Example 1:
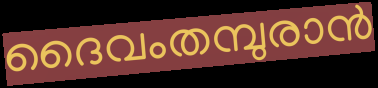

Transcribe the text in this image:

ദൈവംതമ്പുരാൻ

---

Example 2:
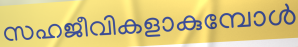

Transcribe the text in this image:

സഹജീവികളാകുമ്പോൾ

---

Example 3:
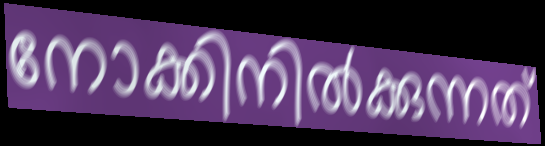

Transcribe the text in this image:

നോക്കിനിൽക്കുന്നത്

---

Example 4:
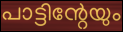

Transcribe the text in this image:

പാട്ടിന്റേയും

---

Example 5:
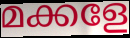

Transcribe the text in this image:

മക്കളേ